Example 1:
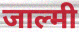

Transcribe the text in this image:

जाल्मी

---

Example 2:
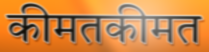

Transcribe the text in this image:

कीमतकीमत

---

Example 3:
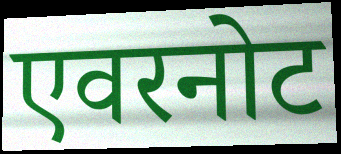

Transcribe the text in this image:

एवरनोट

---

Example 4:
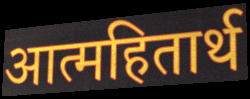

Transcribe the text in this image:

आत्महितार्थ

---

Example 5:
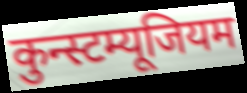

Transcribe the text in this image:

कुन्स्टम्यूजियम